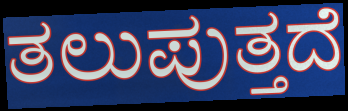
ತಲುಪುತ್ತದೆ